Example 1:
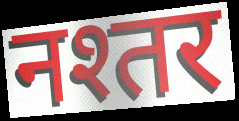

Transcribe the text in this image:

नश्तर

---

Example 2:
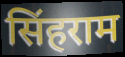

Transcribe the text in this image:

सिंहराम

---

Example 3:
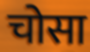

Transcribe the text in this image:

चोसा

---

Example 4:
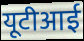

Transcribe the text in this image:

यूटीआई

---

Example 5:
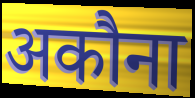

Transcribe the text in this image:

अकौना